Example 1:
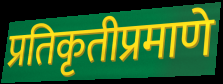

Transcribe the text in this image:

प्रतिकृतीप्रमाणे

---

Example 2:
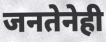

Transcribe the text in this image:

जनतेनेही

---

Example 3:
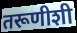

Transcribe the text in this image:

तरूणीशी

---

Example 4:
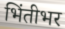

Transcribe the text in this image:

भिंतीभर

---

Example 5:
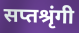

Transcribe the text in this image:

सप्तश्रृंगी